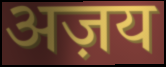
अज़य